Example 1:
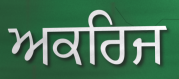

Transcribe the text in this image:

ਅਕਰਿਜ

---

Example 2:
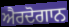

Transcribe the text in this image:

ਐਰਦੋਗਾਨ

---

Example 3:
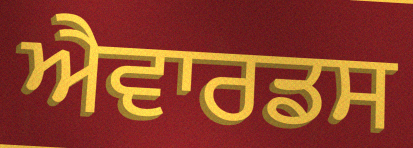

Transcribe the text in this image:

ਐਵਾਰਡਸ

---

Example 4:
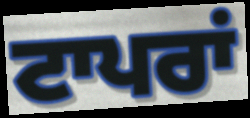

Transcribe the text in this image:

ਟਾਪਰਾਂ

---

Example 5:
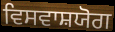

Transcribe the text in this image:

ਵਿਸਵਾਸ਼ਯੋਗ